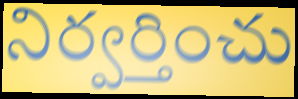
నిర్వర్తించు